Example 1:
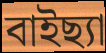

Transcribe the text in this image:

বাইছ্যা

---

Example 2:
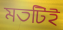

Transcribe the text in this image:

মতটিই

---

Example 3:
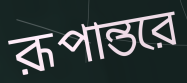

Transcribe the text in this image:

রূপান্তরে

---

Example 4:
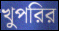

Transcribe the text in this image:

খুপরির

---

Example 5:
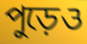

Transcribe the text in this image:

পুড়েও